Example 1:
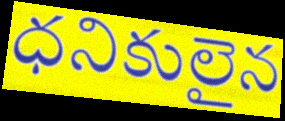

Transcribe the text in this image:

ధనికులైన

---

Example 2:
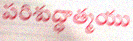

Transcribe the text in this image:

పరిశుద్ధాత్మయు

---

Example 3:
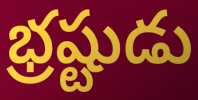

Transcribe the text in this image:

భ్రష్టుడు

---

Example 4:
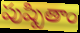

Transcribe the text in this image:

పుష్పితాం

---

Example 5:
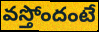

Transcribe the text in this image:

వస్తోందంటే